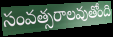
సంవత్సరాలవుతోంది